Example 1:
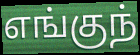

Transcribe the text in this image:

எங்குந்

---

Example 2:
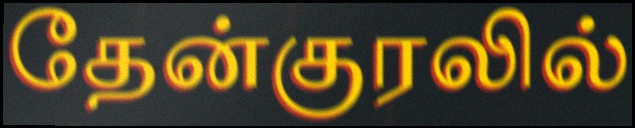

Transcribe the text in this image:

தேன்குரலில்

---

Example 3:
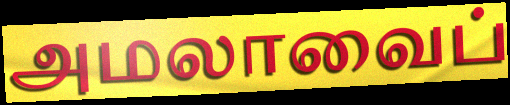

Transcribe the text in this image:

அமலாவைப்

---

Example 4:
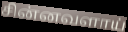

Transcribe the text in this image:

சின்னவளாய்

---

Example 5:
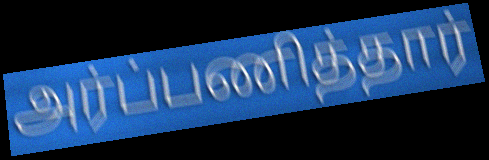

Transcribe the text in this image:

அர்ப்பணித்தார்